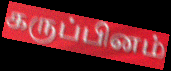
கருப்பினம்